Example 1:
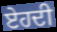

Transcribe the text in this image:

ਏਹਦੀ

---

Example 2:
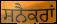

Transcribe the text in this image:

ਸਨੈਕਰਾਂ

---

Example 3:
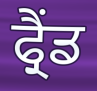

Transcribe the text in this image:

ਫ੍ਰੈਂਡ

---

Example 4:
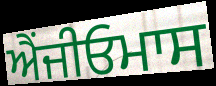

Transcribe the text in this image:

ਐਂਜੀਓਮਾਸ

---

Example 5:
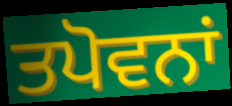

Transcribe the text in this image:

ਤਪੋਵਨਾਂ